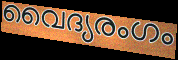
വൈദ്യരംഗം